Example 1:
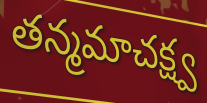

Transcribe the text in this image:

తన్మమాచక్ష్వ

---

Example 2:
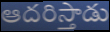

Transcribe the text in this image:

ఆదరిస్తాడు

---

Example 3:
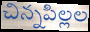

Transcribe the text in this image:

చిన్నపిల్లల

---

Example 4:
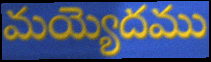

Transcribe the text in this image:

మయ్యెదము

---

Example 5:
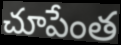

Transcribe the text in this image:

చూపేంత